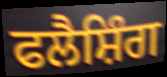
ਫਲੈਸ਼ਿੰਗ